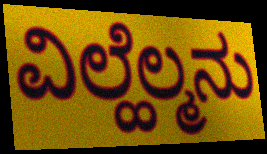
ವಿಲ್ಹೆಲ್ಮನು